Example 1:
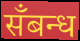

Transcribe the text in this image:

सँबन्ध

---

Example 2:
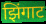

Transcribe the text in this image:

झिंगाट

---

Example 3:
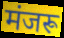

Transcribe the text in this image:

मंजरू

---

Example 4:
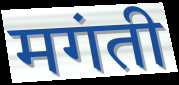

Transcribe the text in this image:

मगंती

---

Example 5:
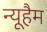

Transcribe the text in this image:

न्यूहैम